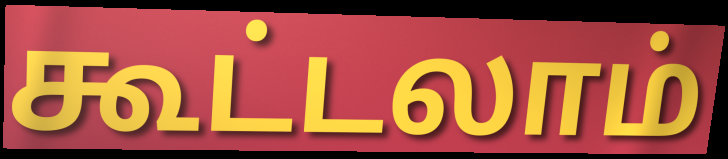
கூட்டலாம்